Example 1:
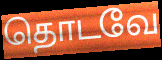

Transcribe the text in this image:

தொடவே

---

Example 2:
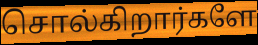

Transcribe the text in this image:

சொல்கிறார்களே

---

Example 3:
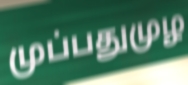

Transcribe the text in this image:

முப்பதுமுழ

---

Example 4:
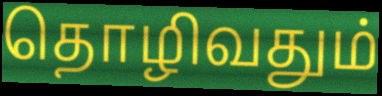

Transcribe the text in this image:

தொழிவதும்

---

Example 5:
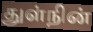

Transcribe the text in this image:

துள்நின்